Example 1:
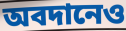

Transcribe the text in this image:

অবদানেও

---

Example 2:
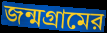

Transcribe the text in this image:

জন্মগ্রামের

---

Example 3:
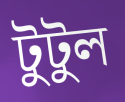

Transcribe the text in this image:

টুটুল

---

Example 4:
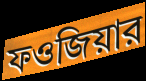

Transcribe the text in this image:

ফওজিয়ার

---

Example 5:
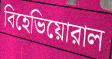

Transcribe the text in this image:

বিহেভিয়োরাল